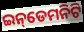
ଇନ୍‌ଡେମନିଟି